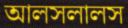
আলসলালস